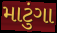
માટુંગા